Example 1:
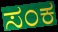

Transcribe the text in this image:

ಸಂಕ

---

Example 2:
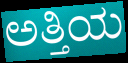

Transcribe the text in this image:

ಅತ್ತಿಯ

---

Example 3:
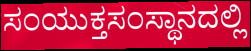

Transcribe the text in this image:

ಸಂಯುಕ್ತಸಂಸ್ಥಾನದಲ್ಲಿ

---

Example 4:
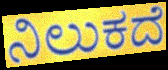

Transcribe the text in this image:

ನಿಲುಕದೆ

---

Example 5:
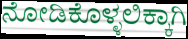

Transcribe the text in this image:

ನೋಡಿಕೊಳ್ಳಲಿಕ್ಕಾಗಿ